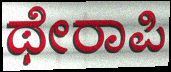
ಥೇರಾಪಿ